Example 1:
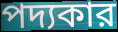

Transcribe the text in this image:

পদ্যকার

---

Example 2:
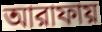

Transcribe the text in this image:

আরাফায়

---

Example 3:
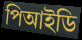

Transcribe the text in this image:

পিআইডি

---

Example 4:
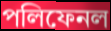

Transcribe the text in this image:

পলিফেনল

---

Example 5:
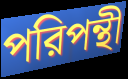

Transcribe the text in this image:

পরিপন্থী